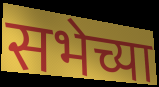
सभेच्या